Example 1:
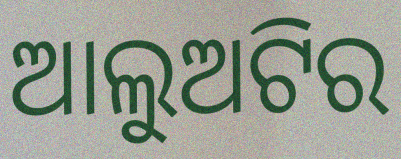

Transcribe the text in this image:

ଆଲୁଅଟିର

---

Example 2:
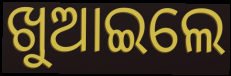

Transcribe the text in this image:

ଖୁଆଇଲେ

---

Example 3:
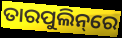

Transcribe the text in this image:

ତାରପୁଲିନ୍‌ରେ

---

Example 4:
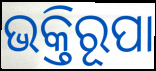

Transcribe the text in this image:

ଭକ୍ତିରୂପା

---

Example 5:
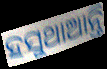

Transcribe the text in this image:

ହସୁଥାଆନ୍ତି